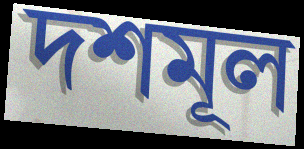
দশমূল